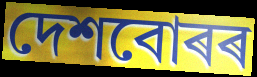
দেশবোৰৰ